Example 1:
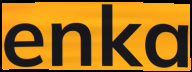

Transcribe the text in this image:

enka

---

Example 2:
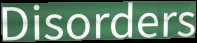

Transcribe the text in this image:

Disorders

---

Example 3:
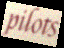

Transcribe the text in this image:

pilots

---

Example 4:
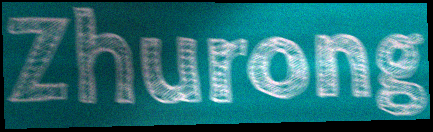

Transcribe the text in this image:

Zhurong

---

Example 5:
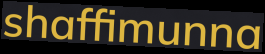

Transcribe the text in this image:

shaffimunna